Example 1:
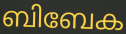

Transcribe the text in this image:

ബിബേക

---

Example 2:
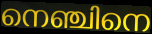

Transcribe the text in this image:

നെഞ്ചിനെ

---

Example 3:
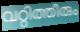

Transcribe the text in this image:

വറ്റിത്തീരും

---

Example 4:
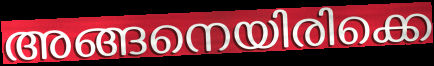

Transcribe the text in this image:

അങ്ങനെയിരിക്കെ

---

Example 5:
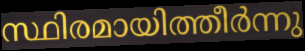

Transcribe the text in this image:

സ്ഥിരമായിത്തീർന്നു